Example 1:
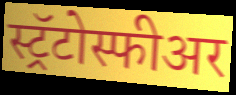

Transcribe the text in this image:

स्ट्रॅटोस्फीअर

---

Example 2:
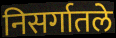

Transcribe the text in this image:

निसर्गातले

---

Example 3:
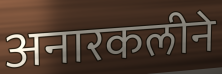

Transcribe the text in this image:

अनारकलीने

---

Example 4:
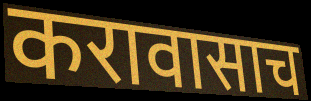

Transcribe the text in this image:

करावासाच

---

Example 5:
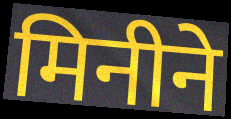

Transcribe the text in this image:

मिनीने